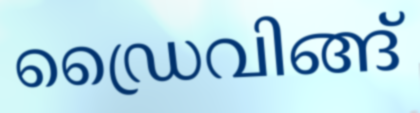
ഡ്രൈവിങ്ങ്